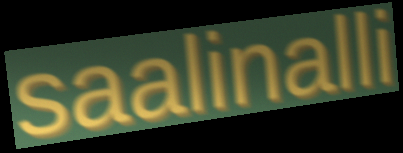
saalinalli